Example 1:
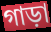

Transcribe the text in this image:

গাড়া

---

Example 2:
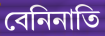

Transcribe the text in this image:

বেনিনাতি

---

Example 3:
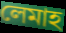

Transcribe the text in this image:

লেমাহ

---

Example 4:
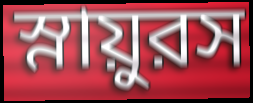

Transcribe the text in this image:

স্নায়ুরস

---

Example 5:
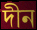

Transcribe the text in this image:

দীন